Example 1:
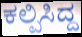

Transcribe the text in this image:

ಕಲ್ಪಿಸಿದ್ದ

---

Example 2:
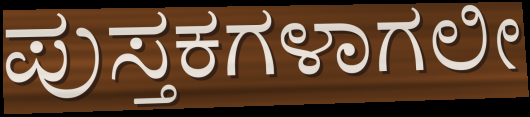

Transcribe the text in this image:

ಪುಸ್ತಕಗಳಾಗಲೀ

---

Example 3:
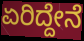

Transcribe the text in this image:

ಏರಿದ್ದೇನೆ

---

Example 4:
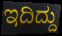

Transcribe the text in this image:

ಇದಿದ್ದು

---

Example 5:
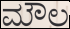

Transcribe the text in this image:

ಮೌಲ